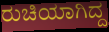
ರುಚಿಯಾಗಿದ್ದ